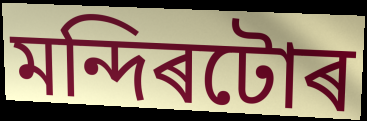
মন্দিৰটোৰ